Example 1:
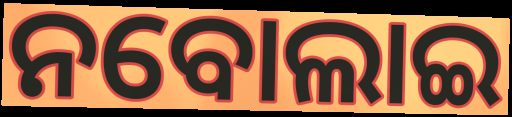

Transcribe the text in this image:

ନବୋଲାଇ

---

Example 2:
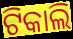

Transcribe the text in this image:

ଟିକାଲି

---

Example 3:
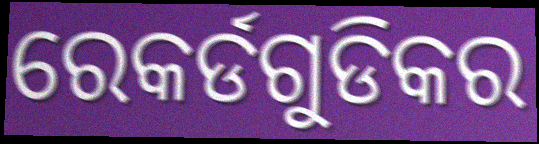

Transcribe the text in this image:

ରେକର୍ଡଗୁଡିକର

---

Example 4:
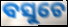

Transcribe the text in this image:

ବସୁଚେ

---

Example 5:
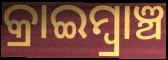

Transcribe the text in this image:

କ୍ରାଇମ୍ବ୍ରାଞ୍ଚ